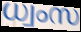
ധ്വംസ